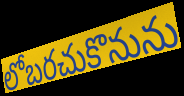
లోబరచుకొనును